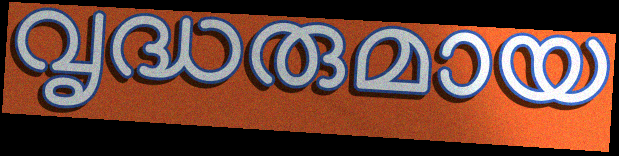
വൃദ്ധരുമായ